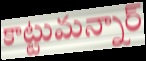
కాట్టుమన్నార్